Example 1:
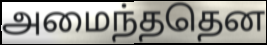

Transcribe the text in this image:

அமைந்ததென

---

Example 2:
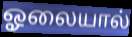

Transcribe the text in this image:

ஓலையால்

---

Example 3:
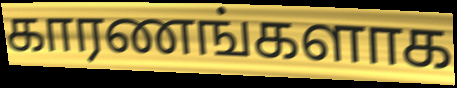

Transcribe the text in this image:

காரணங்களாக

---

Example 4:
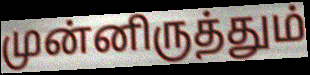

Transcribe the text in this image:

முன்னிருத்தும்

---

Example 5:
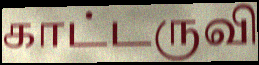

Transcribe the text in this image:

காட்டருவி